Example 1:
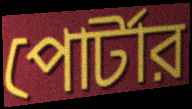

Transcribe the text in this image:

পোর্টার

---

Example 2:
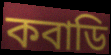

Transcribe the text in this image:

কবাডি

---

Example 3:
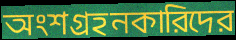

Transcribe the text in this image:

অংশগ্রহনকারিদের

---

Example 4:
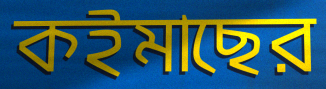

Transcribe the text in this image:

কইমাছের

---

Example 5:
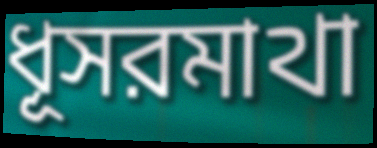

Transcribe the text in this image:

ধূসরমাথা